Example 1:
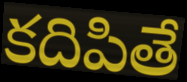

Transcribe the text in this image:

కదిపితే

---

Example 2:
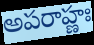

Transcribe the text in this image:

అపరాహ్ణః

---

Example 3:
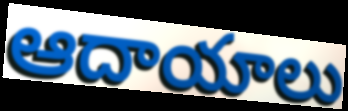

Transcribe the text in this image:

ఆదాయాలు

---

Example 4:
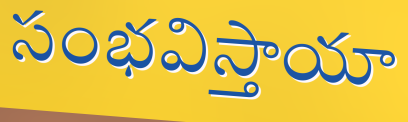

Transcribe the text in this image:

సంభవిస్తాయా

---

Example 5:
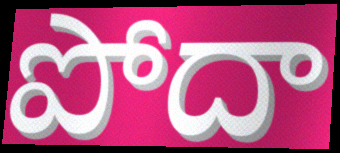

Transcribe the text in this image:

పోదా